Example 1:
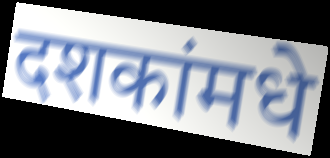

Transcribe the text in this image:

दशकांमधे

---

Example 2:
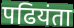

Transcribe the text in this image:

पढियंता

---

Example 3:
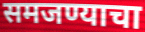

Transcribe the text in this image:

समजण्याचा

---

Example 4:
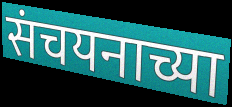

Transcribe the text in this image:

संचयनाच्या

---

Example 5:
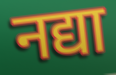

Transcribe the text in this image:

नद्या